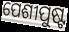
ପେଶୀପୁଷ୍ଟ